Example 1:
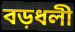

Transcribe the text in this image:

বড়ধলী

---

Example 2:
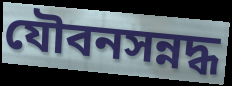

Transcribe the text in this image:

যৌবনসন্নদ্ধ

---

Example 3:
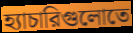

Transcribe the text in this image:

হ্যাচারিগুলোতে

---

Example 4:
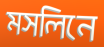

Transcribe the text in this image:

মসলিনে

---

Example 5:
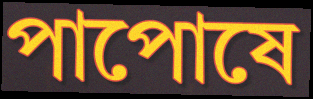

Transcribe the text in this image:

পাপোষে